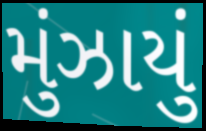
મુંઝાયું